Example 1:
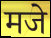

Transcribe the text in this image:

मजे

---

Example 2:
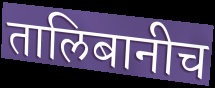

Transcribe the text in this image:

तालिबानीच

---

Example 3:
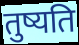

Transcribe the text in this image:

तुष्यति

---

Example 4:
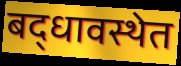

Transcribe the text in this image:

बद्धावस्थेत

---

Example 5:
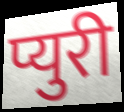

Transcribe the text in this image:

प्युरी